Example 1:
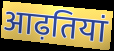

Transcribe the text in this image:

आढ़तियां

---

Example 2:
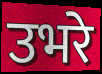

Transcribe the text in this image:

उभरे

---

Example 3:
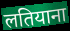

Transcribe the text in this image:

लतियाना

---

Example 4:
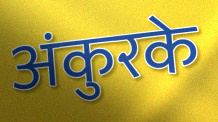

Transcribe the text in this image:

अंकुरके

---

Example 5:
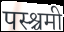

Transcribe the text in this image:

पस्श्चमी